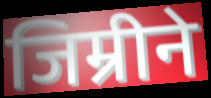
जिम्रीने